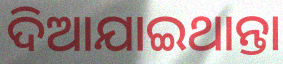
ଦିଆଯାଇଥାନ୍ତା